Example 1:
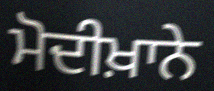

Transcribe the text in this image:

ਮੋਦੀਖ਼ਾਨੇ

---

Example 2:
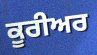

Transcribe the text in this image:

ਕੂਰੀਅਰ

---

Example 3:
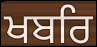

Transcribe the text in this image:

ਖਬਰਿ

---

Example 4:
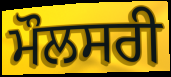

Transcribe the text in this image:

ਮੌਲਸਰੀ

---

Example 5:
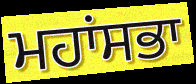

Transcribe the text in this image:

ਮਹਾਂਸਭਾ